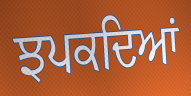
ਝਪਕਦਿਆਂ